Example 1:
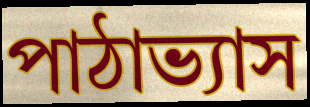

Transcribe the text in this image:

পাঠাভ্যাস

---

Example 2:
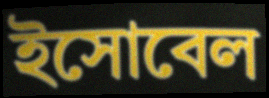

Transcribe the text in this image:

ইসোবেল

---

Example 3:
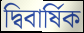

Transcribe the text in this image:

দ্বিবার্ষিক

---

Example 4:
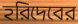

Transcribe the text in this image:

হরিদেবের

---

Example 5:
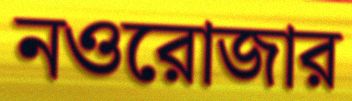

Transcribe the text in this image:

নওরোজার